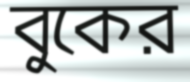
বুকের